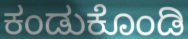
ಕಂಡುಕೊಂಡಿ